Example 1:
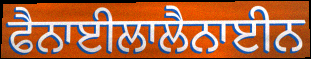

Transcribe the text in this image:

ਫੈਨਾਈਲਾਲੈਨਾਈਨ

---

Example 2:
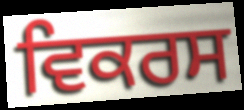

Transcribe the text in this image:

ਵਿਕਰਸ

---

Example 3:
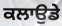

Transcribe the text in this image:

ਕਲਾਉਡੇ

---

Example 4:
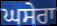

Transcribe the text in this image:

ਘਸੇਰਾ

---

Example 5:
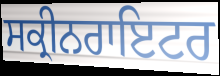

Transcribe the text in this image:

ਸਕ੍ਰੀਨਰਾਇਟਰ